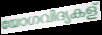
യോഗവിദ്യകള്